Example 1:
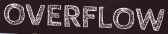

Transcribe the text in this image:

OVERFLOW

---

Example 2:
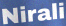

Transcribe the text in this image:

Nirali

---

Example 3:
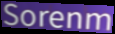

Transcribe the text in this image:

Sorenm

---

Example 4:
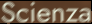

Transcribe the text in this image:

Scienza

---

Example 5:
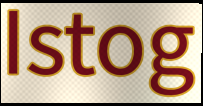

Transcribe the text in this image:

Istog